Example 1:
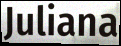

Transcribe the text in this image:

Juliana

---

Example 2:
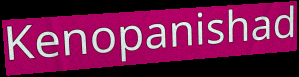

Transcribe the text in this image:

Kenopanishad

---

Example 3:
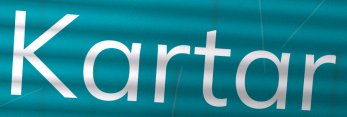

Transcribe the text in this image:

Kartar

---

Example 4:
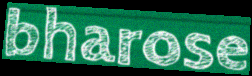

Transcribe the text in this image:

bharose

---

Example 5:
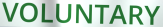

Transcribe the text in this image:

VOLUNTARY